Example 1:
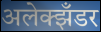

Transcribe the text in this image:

अलेक्झँडर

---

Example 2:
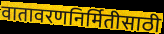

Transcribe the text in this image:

वातावरणनिर्मितीसाठी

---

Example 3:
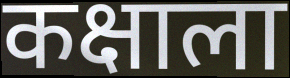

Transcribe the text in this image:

कक्षाला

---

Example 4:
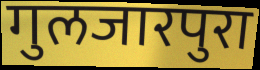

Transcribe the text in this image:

गुलजारपुरा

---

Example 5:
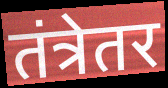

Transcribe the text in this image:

तंत्रेतर